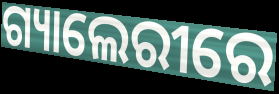
ଗ୍ୟାଲେରୀରେ